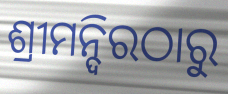
ଶ୍ରୀମନ୍ଦିରଠାରୁ